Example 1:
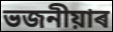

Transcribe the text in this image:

ভজনীয়াৰ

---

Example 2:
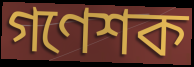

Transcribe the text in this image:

গণেশক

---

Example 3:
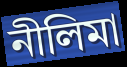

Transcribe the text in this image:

নীলিমা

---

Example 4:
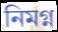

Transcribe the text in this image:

নিমগ্ন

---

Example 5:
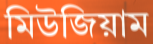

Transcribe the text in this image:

মিউজিয়াম